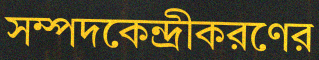
সম্পদকেন্দ্রীকরণের